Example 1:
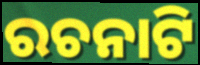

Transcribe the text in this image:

ରଚନାଟି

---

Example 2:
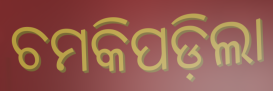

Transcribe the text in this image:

ଚମକିପଡ଼ିଲା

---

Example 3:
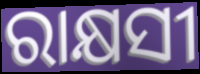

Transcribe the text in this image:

ରାକ୍ଷସୀ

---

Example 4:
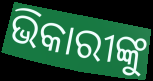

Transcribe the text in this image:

ଭିକାରୀଙ୍କୁ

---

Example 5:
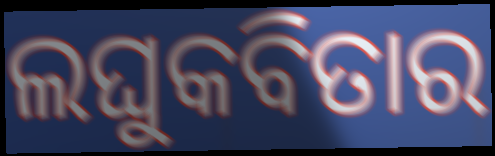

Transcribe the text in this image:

ଲଘୁକବିତାର